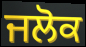
ਜਲੋਕ